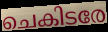
ചെകിടരേ